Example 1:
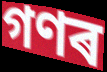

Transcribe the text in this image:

গণৰ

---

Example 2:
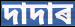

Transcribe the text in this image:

দাদাৰ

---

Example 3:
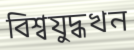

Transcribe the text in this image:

বিশ্বযুদ্ধখন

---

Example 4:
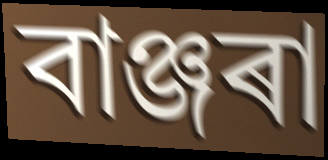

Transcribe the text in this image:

বাঞ্জৰা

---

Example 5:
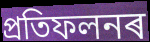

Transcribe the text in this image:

প্ৰতিফলনৰ